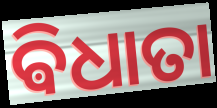
ଵିଧାତା